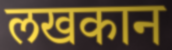
लखकान